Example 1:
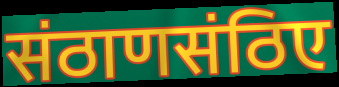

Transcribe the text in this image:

संठाणसंठिए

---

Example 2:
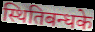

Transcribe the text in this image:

स्थितिबन्धके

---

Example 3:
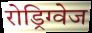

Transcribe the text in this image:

रोड्रिग्वेज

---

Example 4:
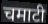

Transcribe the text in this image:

चमाटी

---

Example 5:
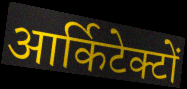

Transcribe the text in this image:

आर्किटेक्टों